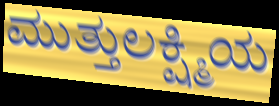
ಮುತ್ತುಲಕ್ಷ್ಮಿಯ